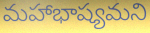
మహాభాష్యమని